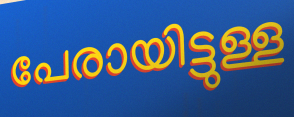
പേരായിട്ടുള്ള